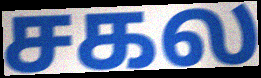
சகல